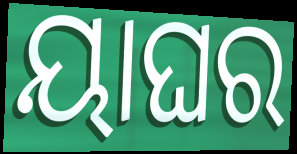
ୟାଘର